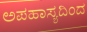
ಅಪಹಾಸ್ಯದಿಂದ